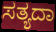
ಸತ್ಯದಾ